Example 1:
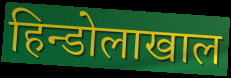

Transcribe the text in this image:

हिन्डोलाखाल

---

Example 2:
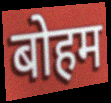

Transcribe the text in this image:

बोहम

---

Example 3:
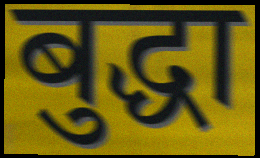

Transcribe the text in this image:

बुद्धा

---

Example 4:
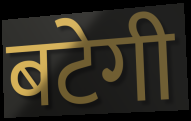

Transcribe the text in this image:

बटेगी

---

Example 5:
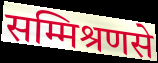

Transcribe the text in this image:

सम्मिश्रणसे